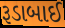
રૂડાબાઈ